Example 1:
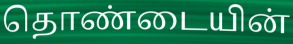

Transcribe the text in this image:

தொண்டையின்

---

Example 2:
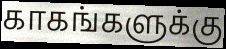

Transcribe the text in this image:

காகங்களுக்கு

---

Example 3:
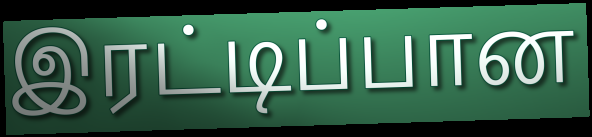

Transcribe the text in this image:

இரட்டிப்பான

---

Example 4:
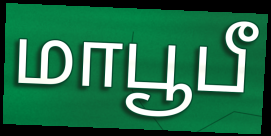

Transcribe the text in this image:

மாபூபீ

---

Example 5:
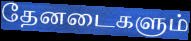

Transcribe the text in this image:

தேனடைகளும்